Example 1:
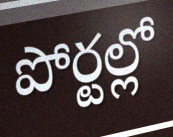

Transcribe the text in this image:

పోర్టల్లో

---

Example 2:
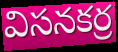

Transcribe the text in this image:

విసనకర్ర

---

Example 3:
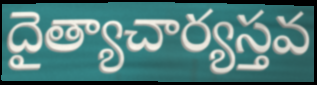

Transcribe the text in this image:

దైత్యాచార్యస్తవ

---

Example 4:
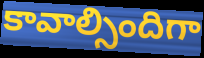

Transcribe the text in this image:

కావాల్సిందిగా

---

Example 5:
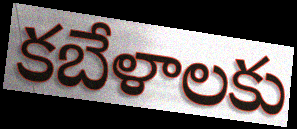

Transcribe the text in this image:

కబేళాలకు